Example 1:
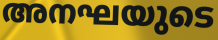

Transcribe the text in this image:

അനഘയുടെ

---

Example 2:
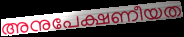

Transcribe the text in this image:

അനുപേക്ഷണീയത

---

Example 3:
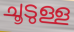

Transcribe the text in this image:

ചൂടുള്ള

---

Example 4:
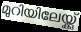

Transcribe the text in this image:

മുറിയിലേയ്ക്കു്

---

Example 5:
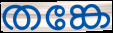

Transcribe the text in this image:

തങ്കേ